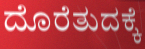
ದೊರೆತುದಕ್ಕೆ